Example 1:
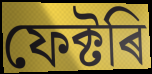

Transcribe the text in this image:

ফেক্টৰি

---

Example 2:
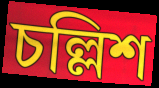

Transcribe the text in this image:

চল্লিশ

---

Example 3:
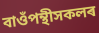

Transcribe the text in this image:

বাওঁপন্থীসকলৰ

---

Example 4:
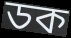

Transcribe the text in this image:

ডক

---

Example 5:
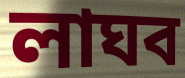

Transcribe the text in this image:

লাঘব